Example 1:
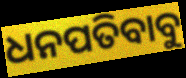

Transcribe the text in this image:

ଧନପତିବାବୁ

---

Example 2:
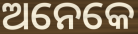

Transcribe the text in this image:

ଅନେକେ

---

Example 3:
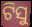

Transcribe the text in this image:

ଟିସୁ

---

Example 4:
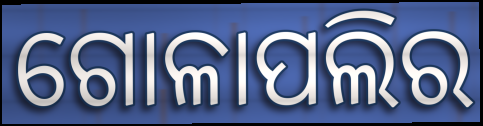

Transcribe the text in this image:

ଗୋଳାପଲିର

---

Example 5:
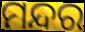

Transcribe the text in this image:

ମନ୍ଦର